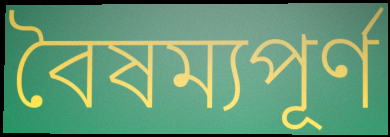
বৈষম্যপূৰ্ণ